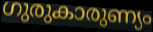
ഗുരുകാരുണ്യം